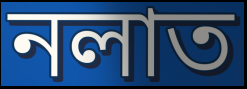
নলাত